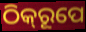
ଠିକ୍‌ରୂପେ